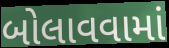
બોલાવવામાં